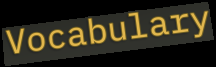
Vocabulary